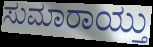
ಸುಮಾರಾಯ್ತು